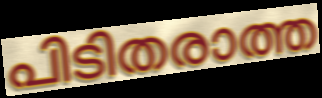
പിടിതരാത്ത